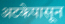
अटकेपासून